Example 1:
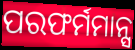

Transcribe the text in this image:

ପରଫର୍ମମାନ୍ସ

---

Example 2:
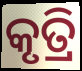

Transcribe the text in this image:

କୃତ୍ରି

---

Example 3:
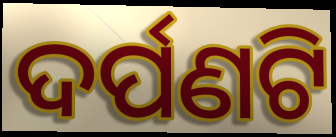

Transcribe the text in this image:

ଦର୍ପଣଟି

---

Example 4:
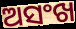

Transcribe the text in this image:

ଅସଂଖ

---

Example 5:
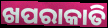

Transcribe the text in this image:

ଖପରାକାତି